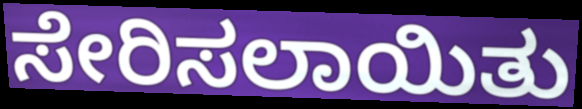
ಸೇರಿಸಲಾಯಿತು